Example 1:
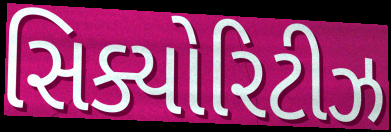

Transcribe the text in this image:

સિક્યોરિટીઝ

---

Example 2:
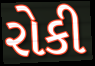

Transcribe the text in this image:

રોકી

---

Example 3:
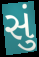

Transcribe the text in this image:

સું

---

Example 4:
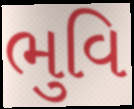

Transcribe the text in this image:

ભુવિ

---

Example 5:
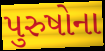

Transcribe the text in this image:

પુરુષોના